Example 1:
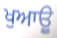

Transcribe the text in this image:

ਖੁਆਊ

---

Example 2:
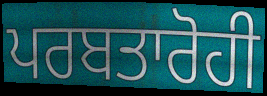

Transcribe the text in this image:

ਪਰਬਤਾਰੋਹੀ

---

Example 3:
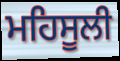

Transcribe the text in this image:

ਮਹਿਸੂਲੀ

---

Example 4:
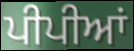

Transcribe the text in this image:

ਪੀਪੀਆਂ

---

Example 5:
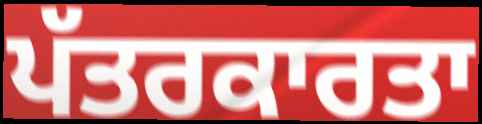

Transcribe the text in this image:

ਪੱਤਰਕਾਰਤਾ